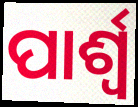
ପାର୍ଶ୍ବ